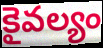
కైవల్యం